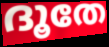
ദൂതേ